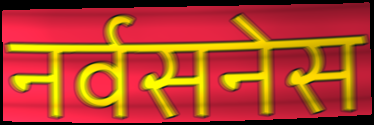
नर्वसनेस